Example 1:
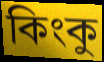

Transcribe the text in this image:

কিংকু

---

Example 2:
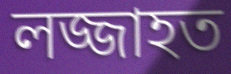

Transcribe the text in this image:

লজ্জাহত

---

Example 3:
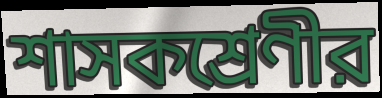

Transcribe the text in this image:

শাসকশ্রেণীর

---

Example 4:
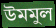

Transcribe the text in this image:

উমমুল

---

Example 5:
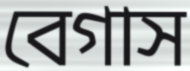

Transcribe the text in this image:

বেগাস